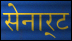
सेनार्ट